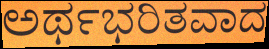
ಅರ್ಥಭರಿತವಾದ